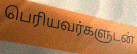
பெரியவர்களுடன்